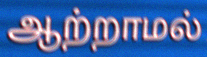
ஆற்றாமல்